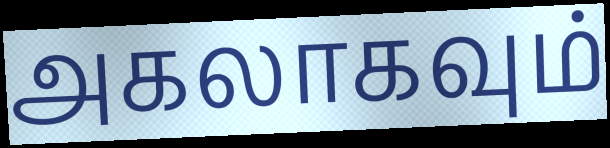
அகலாகவும்